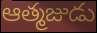
ఆత్మజుడు